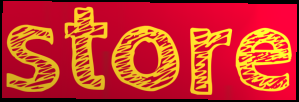
store